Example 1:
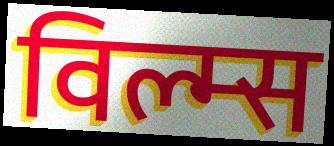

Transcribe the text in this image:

विल्म्स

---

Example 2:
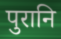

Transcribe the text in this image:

पुरानि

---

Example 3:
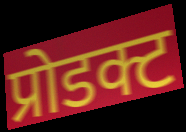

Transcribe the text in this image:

प्रोडक्ट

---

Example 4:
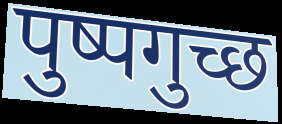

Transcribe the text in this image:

पुष्पगुच्छ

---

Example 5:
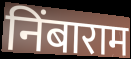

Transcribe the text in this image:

निंबाराम